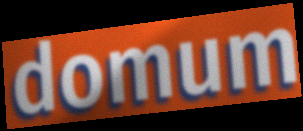
domum